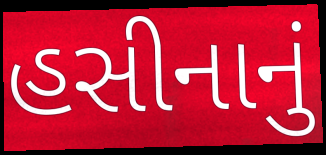
હસીનાનું